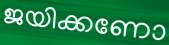
ജയിക്കണോ